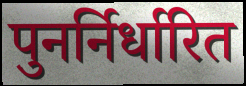
पुनर्निर्धारित